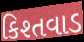
કિશ્તવાડ